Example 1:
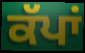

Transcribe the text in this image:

ਕੱਪਾਂ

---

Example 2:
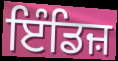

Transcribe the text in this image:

ਇੰਡਿਜ਼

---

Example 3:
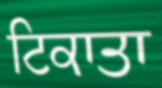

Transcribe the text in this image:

ਟਿਕਾਤਾ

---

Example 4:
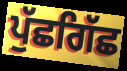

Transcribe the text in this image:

ਪੁੱਛਗਿੱਛ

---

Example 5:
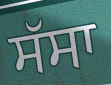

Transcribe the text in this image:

ਸੱਸਾ